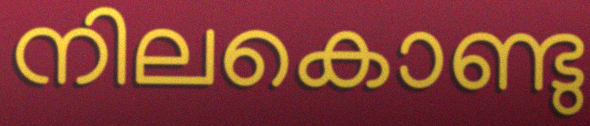
നിലകൊണ്ടു